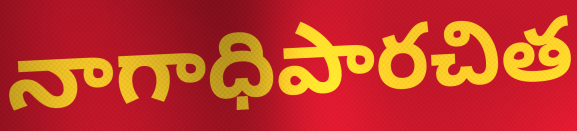
నాగాధిపారచిత